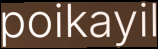
poikayil